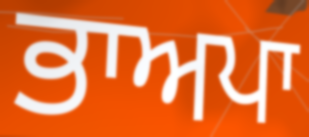
ਭਾਅਪਾ